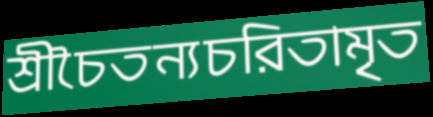
শ্রীচৈতন্যচরিতামৃত